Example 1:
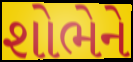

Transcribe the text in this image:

શોભેને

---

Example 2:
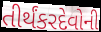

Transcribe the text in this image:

તીર્થંકરદેવોની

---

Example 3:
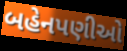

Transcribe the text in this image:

બહેનપણીઓ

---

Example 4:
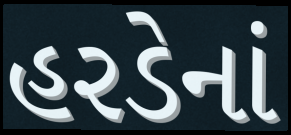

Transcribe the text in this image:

હરડેનાં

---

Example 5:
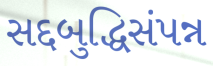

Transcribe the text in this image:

સદ્દબુદ્ધિસંપન્ન